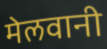
मेलवानी